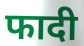
फादी